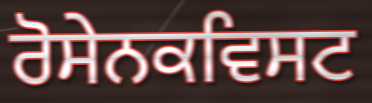
ਰੋਸੇਨਕਵਿਸਟ